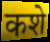
कशे